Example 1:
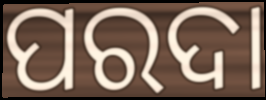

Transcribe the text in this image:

ପରଦା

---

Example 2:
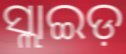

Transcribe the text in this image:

ସ୍ଲାଇଡ଼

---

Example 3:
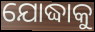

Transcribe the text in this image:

ଯୋଦ୍ଧାକୁ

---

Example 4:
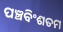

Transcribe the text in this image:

ପଞ୍ଚବିଂଶତମ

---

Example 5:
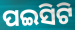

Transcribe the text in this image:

ପଇସିଟି